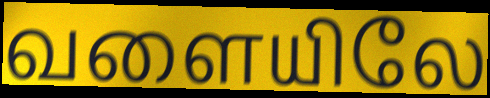
வளையிலே